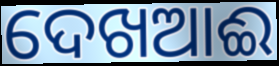
ଦେଖଆଈ